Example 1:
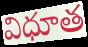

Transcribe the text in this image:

విధూత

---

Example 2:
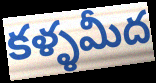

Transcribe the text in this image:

కళ్ళమీద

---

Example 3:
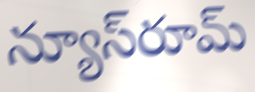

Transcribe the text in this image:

న్యూస్‌రూమ్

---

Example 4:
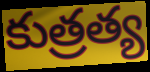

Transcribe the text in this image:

కుత్రత్య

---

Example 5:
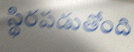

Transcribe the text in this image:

స్థిరపడుతోంది